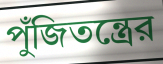
পুঁজিতন্ত্রের